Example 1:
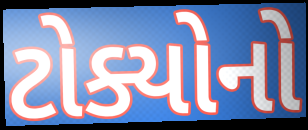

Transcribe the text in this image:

ટોક્યોનો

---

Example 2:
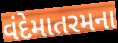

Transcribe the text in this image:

વંદેમાતરમના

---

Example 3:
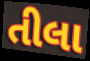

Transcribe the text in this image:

તીલા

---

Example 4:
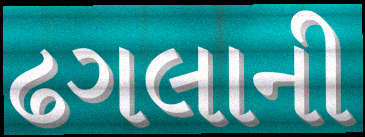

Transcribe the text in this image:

ઢગલાની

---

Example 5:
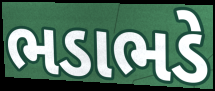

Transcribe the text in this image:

ભડાભડે